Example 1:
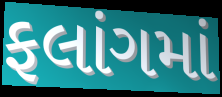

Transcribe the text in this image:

ફલાંગમાં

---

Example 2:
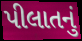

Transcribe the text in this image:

પીલાતનું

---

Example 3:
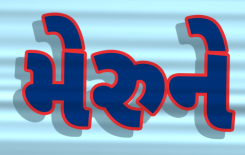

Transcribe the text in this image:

મેરુને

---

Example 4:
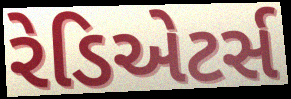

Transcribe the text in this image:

રેડિએટર્સ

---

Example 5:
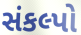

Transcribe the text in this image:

સંકલ્પો